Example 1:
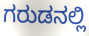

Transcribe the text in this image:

ಗರುಡನಲ್ಲಿ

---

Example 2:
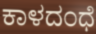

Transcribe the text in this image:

ಕಾಳದಂಧೆ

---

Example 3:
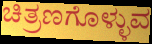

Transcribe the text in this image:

ಚಿತ್ರಣಗೊಳ್ಳುವ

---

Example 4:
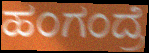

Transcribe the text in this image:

ಹಂಗಂದ್ರೆ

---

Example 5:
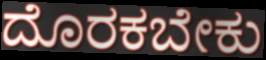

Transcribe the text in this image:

ದೊರಕಬೇಕು